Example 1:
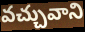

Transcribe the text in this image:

వచ్చువాని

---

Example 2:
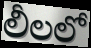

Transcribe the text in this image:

లీలలో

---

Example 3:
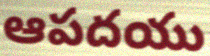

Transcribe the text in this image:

ఆపదయు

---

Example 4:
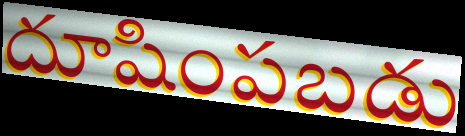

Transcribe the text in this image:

దూషింపబడు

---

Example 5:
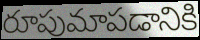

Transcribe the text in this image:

రూపుమాపడానికి